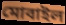
মোবাইল